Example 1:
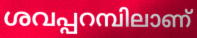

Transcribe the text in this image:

ശവപ്പറമ്പിലാണ്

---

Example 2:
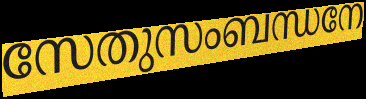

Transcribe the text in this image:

സേതുസംബന്ധനേ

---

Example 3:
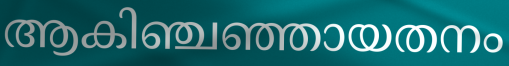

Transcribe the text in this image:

ആകിഞ്ചഞ്ഞായതനം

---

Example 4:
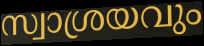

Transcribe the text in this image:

സ്വാശ്രയവും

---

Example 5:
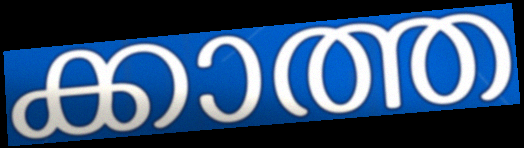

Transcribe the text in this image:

ക്കാത്ത